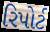
રિપોર્ટ